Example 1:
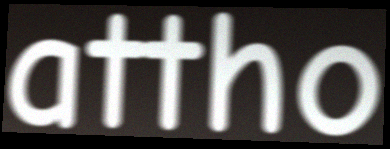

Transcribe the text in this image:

attho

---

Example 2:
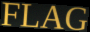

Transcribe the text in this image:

FLAG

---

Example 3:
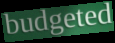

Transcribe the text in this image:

budgeted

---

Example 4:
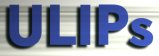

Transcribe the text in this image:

ULIPs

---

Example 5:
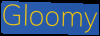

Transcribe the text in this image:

Gloomy